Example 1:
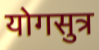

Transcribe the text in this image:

योगसुत्र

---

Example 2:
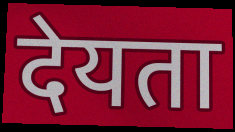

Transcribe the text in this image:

देयता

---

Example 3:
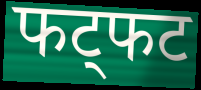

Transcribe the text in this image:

फट्फट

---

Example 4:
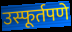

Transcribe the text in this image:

उस्फूर्तपणे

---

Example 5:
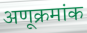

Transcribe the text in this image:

अणूक्रमांक